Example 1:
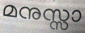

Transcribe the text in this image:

മനുസ്സാ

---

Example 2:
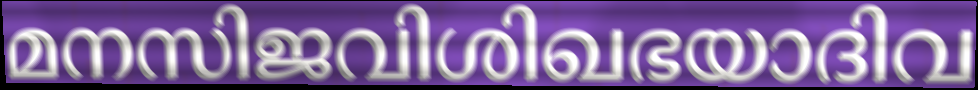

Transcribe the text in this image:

മനസിജവിശിഖഭയാദിവ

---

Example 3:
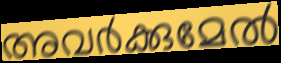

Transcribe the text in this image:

അവർക്കുമേൽ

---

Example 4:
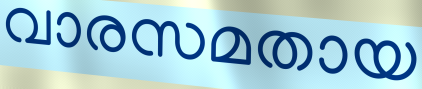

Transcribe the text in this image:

വാരസമതായ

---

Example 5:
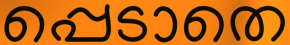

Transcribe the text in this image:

പ്പെടാതെ